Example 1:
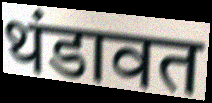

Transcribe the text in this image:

थंडावत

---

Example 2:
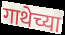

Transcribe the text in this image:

गाथेच्या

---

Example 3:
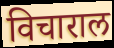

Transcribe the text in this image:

विचाराल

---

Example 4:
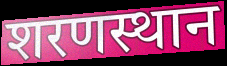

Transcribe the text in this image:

शरणस्थान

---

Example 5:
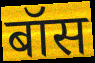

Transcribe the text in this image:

बॉस